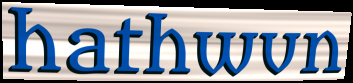
hathwun